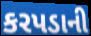
કરપડાની